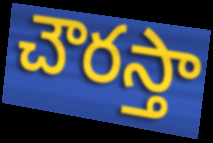
చౌరస్తా